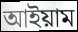
আইয়াম